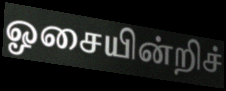
ஓசையின்றிச்